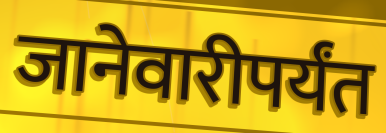
जानेवारीपर्यंत